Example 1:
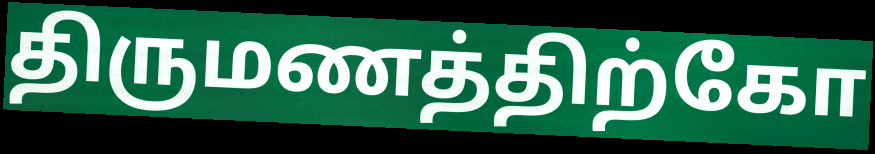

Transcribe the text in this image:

திருமணத்திற்கோ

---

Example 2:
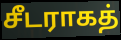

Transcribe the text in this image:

சீடராகத்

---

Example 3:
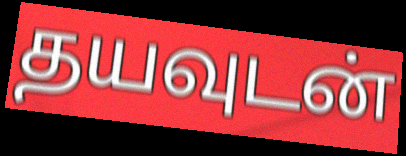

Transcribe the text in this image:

தயவுடன்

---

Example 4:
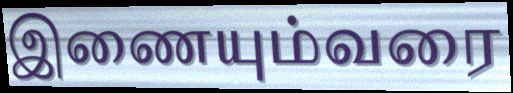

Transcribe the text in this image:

இணையும்வரை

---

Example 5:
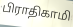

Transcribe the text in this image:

பிராதிகாமி